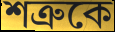
শত্রুকে